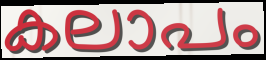
കലാപം